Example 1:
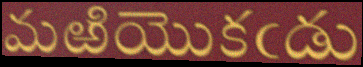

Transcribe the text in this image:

మఱియొకఁడు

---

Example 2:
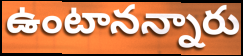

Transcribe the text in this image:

ఉంటానన్నారు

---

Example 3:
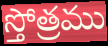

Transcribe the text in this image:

స్తోత్రము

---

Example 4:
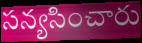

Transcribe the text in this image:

సన్యసించారు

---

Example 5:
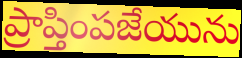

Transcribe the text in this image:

ప్రాప్తింపజేయును